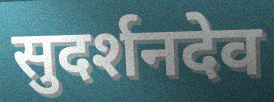
सुदर्शनदेव